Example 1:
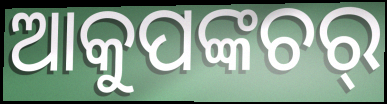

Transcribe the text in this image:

ଆକୁପଙ୍କଚର୍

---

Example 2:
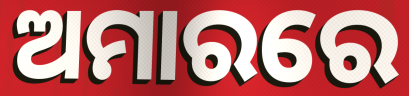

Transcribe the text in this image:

ଅମାରରେ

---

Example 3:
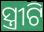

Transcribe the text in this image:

ସ୍ତ୍ରୀଟି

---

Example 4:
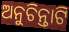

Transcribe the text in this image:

ଅନୁଚିନ୍ତାଟି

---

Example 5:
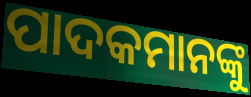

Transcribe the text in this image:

ପାଦକମାନଙ୍କୁ